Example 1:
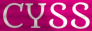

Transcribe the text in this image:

CYSS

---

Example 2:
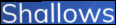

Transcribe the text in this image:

Shallows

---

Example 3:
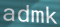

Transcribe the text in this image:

admk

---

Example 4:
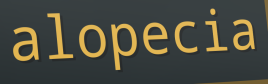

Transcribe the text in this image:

alopecia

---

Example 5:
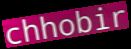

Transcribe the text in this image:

chhobir